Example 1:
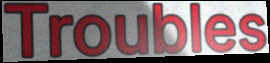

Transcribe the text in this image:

Troubles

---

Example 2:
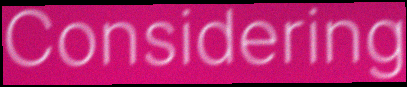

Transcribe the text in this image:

Considering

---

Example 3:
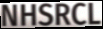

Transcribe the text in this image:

NHSRCL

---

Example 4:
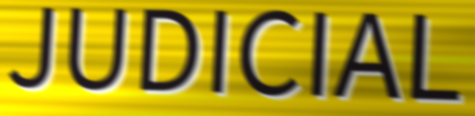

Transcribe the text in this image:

JUDICIAL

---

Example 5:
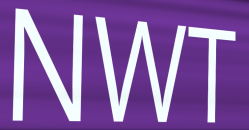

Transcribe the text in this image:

NWT